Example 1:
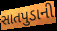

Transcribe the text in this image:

સાતપુડાની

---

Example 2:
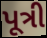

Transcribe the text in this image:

પૂત્રી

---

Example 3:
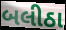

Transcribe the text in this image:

બલીઠા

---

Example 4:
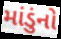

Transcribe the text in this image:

માંડુંનો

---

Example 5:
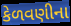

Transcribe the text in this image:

કેળવણીના